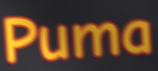
Puma